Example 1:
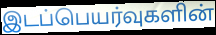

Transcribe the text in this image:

இடப்பெயர்வுகளின்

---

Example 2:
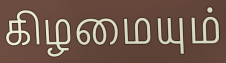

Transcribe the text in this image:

கிழமையும்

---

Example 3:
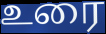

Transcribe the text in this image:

உரை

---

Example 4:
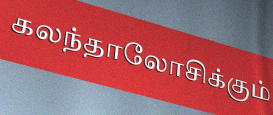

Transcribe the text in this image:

கலந்தாலோசிக்கும்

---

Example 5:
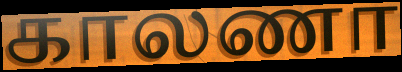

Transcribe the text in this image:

காலணா